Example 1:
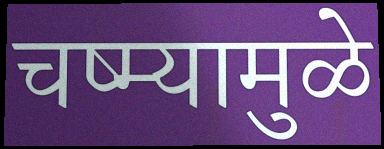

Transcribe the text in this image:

चष्म्यामुळे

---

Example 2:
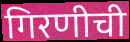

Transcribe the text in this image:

गिरणीची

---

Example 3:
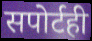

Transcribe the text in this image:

सपोर्टही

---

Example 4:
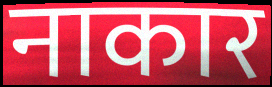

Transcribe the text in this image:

नाकार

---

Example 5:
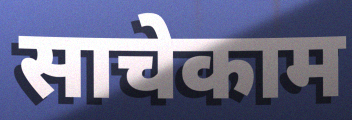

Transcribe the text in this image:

साचेकाम